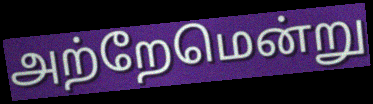
அற்றேமென்று